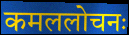
कमललोचनः